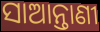
ସାଆନ୍ତାଣୀ